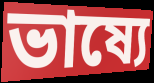
ভাষ্যে